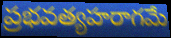
ప్రభవత్యహరాగమే